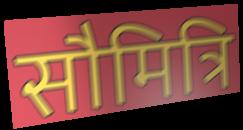
सौमित्रि